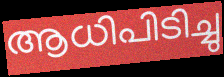
ആധിപിടിച്ചു